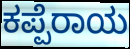
ಕಪ್ಪೆರಾಯ